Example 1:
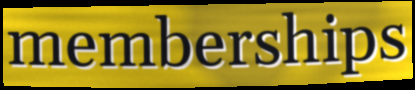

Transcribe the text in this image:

memberships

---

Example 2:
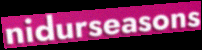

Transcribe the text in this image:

nidurseasons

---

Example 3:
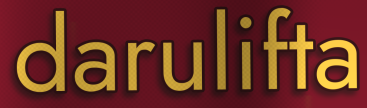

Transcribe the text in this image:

darulifta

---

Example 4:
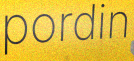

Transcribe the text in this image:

pordin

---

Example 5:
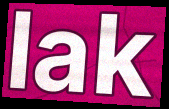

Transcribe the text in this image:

lak